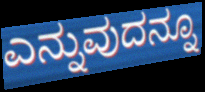
ಎನ್ನುವುದನ್ನೂ